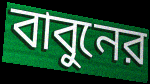
বাবুনের